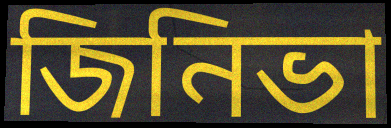
জিনিভা